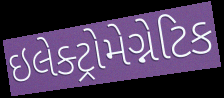
ઇલેક્ટ્રોમેગ્નેટિક